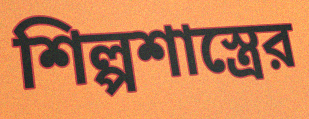
শিল্পশাস্ত্রের